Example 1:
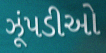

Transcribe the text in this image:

ઝૂંપડીઓ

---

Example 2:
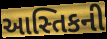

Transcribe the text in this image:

આસ્તિકની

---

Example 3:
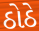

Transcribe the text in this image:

ઠોઠે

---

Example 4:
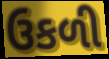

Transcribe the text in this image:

ઉકળી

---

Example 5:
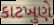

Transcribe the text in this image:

કાટખુણે